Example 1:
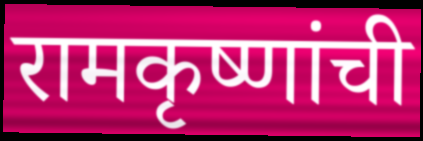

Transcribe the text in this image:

रामकृष्णांची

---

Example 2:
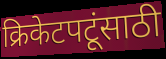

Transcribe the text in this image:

क्रिकेटपटूंसाठी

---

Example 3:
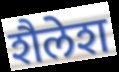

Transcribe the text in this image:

शैलेश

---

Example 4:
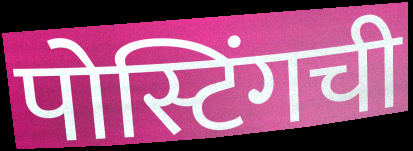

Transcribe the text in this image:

पोस्टिंगची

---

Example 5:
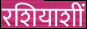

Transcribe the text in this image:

रशियाशीं